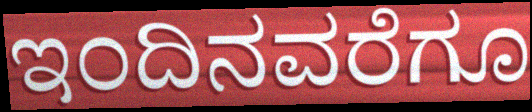
ಇಂದಿನವರೆಗೂ